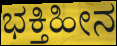
ಭಕ್ತಿಹೀನ